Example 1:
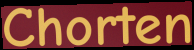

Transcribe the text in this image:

Chorten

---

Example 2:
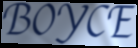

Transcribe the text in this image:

BOYCE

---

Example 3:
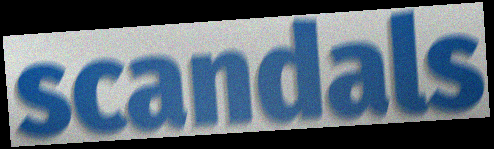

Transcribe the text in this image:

scandals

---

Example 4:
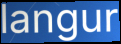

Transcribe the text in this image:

langur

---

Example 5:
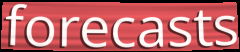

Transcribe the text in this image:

forecasts